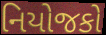
નિયોજકો